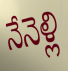
నేనెళ్లి